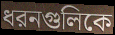
ধরনগুলিকে